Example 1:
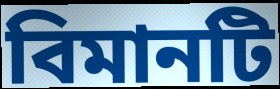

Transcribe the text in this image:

বিমানটি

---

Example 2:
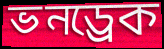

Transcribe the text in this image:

ভনড্রেক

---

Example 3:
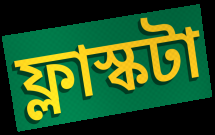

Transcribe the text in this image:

ফ্লাস্কটা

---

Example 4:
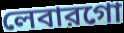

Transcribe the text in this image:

লেবারগো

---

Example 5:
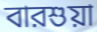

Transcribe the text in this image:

বারশুয়া